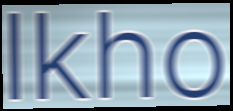
lkho